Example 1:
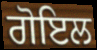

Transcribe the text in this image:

ਗੋਇਲ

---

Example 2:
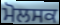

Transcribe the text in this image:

ਮੋਲਸਕ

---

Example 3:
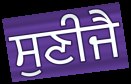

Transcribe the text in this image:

ਸੁਣੀਜੈ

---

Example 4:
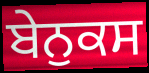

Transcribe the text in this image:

ਬੇਨੁਕਸ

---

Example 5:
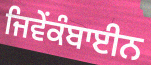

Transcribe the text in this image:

ਜਿਵੇਂਕੰਬਾਈਨ